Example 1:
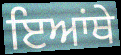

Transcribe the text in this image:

ਇਆਂਥੇ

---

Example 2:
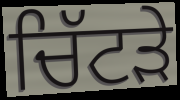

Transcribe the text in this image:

ਚਿੱਟੜੇ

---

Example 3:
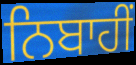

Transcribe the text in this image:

ਨਿਬਾਹੀਂ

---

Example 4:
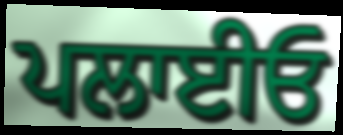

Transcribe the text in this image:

ਪਲਾਈਓ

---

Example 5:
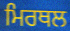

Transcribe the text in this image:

ਮਿਰਥਲ